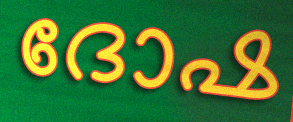
ദോഷ